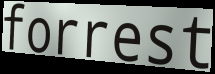
forrest